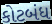
કોટબંધ